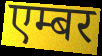
एम्बर